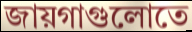
জায়গাগুলোতে